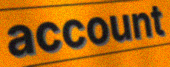
account